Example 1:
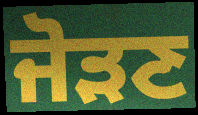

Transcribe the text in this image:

ਜੋੜਣ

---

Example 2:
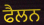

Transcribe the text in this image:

ਫੈਲਨ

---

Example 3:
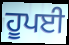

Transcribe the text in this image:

ਹੂਪਈ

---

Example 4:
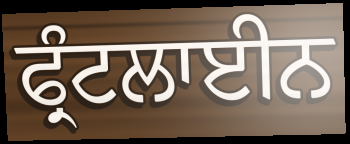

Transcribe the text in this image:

ਫ੍ਰੰਟਲਾਈਨ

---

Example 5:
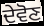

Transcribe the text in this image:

ਦੇਵੋਣ